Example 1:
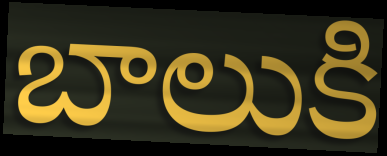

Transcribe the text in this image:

బాలుకి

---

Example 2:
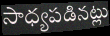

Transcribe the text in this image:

సాధ్యపడినట్లు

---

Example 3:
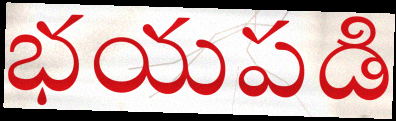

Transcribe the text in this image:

భయపడి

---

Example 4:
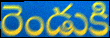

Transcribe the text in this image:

రెండుకి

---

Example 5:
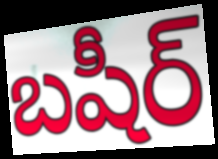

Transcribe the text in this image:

బషీర్